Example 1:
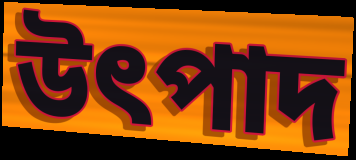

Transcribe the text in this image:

উৎপাদ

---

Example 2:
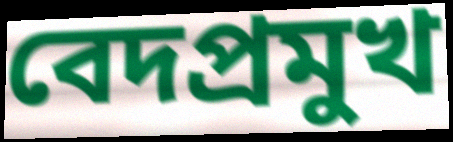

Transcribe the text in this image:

বেদপ্রমুখ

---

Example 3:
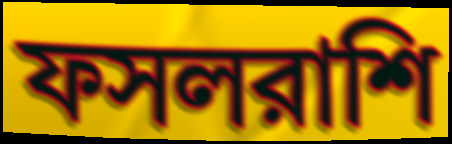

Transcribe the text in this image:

ফসলরাশি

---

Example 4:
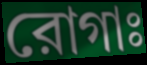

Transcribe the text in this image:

রোগাঃ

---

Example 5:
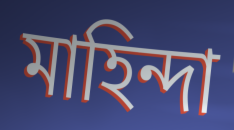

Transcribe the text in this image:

মাহিন্দা